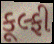
કૂલ્ફી